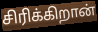
சிரிக்கிறான்